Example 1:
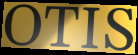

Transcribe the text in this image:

OTIS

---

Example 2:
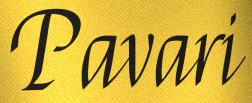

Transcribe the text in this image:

Pavari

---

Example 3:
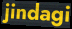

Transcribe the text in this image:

jindagi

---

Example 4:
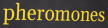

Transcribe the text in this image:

pheromones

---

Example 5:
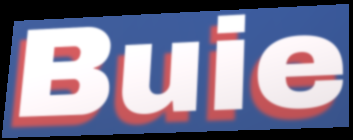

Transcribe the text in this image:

Buie